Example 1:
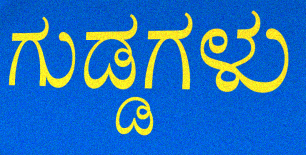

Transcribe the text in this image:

ಗುಡ್ಡಗಳು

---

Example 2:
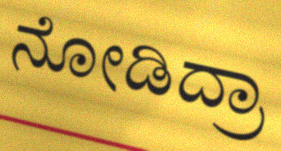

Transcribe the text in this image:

ನೋಡಿದ್ರಾ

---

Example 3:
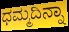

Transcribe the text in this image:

ಧಮ್ಮದಿನ್ನಾ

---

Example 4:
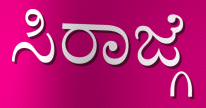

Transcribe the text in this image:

ಸಿರಾಜ್ಗೆ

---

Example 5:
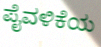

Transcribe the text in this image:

ಪೈವಳಿಕೆಯ